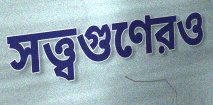
সত্ত্বগুণেরও